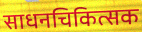
साधनचिकित्सक